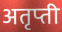
अतृप्ती